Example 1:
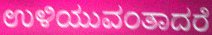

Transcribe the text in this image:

ಉಳಿಯುವಂತಾದರೆ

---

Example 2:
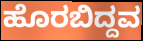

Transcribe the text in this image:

ಹೊರಬಿದ್ದವ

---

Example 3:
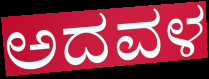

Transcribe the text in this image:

ಅದವಳ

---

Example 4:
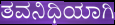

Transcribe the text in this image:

ತವನಿಧಿಯಾಗಿ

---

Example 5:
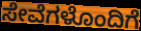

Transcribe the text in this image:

ಸೇವೆಗಳೊಂದಿಗೆ